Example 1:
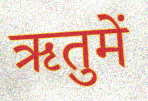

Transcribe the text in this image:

ऋतुमें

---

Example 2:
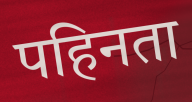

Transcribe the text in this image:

पहिनता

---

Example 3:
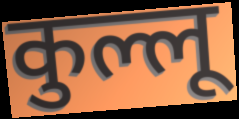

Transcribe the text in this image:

कुल्लू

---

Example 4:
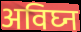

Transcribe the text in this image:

अविघ्न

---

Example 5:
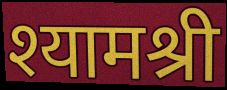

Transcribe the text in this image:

श्यामश्री